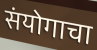
संयोगाचा